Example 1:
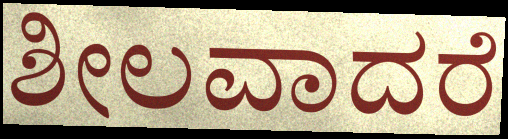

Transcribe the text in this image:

ಶೀಲವಾದರೆ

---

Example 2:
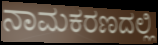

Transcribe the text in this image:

ನಾಮಕರಣದಲ್ಲಿ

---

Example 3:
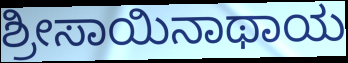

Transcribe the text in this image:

ಶ್ರೀಸಾಯಿನಾಥಾಯ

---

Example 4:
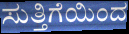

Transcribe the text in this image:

ಸುತ್ತಿಗೆಯಿಂದ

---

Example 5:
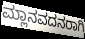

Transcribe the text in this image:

ಮ್ಲಾನವದನರಾಗಿ